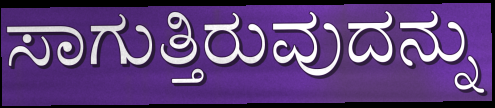
ಸಾಗುತ್ತಿರುವುದನ್ನು